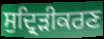
ਸੁਦ੍ਰਿੜੀਕਰਣ